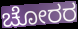
ಚೋರರ